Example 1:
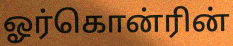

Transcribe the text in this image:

ஓர்கொன்ரின்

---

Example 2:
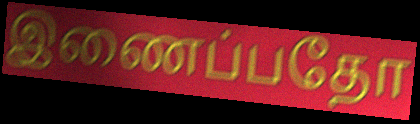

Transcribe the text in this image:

இணைப்பதோ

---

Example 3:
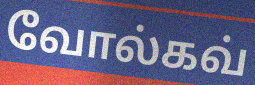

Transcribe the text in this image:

வோல்கவ்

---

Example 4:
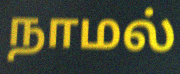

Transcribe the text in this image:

நாமல்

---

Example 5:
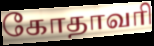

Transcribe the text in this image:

கோதாவரி